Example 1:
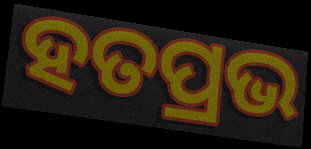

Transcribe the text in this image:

ହତପ୍ରଭ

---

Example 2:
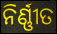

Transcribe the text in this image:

ନିର୍ଣ୍ଣୀତ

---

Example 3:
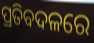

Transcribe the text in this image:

ପ୍ରତିବଦଳରେ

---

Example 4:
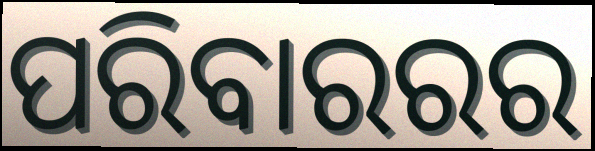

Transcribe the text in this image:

ପରିବାରରର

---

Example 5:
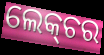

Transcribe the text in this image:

ଲେକ୍‍ଚର